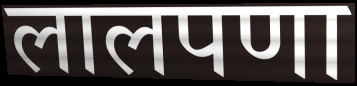
लालपणा